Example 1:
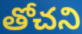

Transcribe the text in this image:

తోచని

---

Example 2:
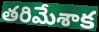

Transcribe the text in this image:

తరిమేశాక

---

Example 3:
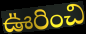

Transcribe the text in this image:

ఊరించి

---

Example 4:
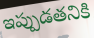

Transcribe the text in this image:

ఇప్పుడతనికి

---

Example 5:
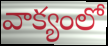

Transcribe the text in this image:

వాక్యంలో